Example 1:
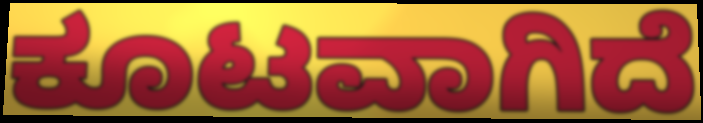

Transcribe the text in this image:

ಕೂಟವಾಗಿದೆ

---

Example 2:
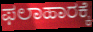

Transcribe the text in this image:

ಫಲಾಹಾರಕ್ಕೆ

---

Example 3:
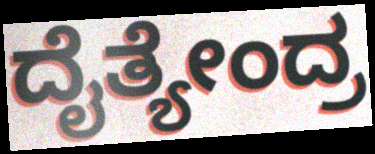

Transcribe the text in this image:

ದೈತ್ಯೇಂದ್ರ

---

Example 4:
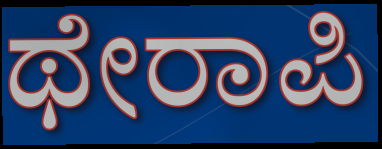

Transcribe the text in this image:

ಥೇರಾಪಿ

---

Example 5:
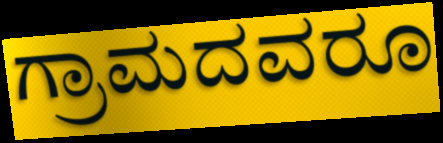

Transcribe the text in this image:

ಗ್ರಾಮದವರೂ